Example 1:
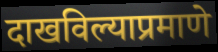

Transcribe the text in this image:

दाखविल्याप्रमाणे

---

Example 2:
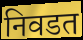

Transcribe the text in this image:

निवडत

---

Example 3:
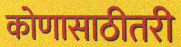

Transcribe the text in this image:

कोणासाठीतरी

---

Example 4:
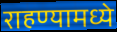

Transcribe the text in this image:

राहण्यामध्ये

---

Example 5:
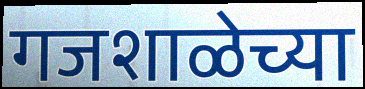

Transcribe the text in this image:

गजशाळेच्या